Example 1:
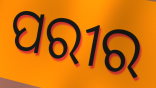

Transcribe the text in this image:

ପରୀର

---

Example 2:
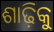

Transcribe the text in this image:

ଶାଢ଼ିକୁ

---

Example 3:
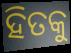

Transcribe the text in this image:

ହିତକୁ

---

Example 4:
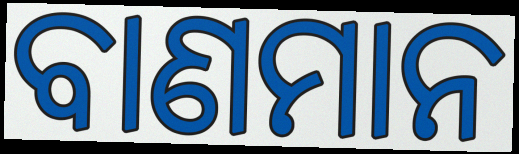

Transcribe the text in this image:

ବାଣମାନ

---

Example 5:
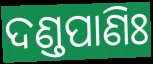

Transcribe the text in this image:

ଦଣ୍ଡପାଣିଃ